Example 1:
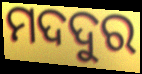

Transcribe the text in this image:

ମଦଦୁର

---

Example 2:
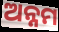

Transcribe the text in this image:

ଅନ୍ନମ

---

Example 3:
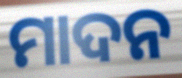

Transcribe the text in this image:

ମାଦନ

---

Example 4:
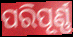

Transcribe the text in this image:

ପରିପୂର୍ଣ୍ଣ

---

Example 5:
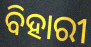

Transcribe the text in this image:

ବିହାରୀ